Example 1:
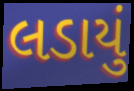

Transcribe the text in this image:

લડાયું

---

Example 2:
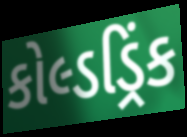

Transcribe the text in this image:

કોલ્ડડ્રિંક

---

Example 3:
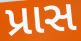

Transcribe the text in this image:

પ્રાસ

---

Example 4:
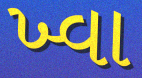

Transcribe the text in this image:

ખ્વા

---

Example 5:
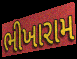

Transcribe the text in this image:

ભીખારામ